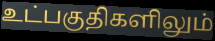
உட்பகுதிகளிலும்